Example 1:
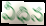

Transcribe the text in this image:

వీధిన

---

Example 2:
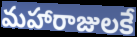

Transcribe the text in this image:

మహారాజులకే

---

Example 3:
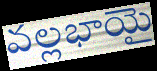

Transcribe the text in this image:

వల్లభాయై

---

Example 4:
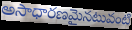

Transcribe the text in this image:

అసాధారణమైనటువంటి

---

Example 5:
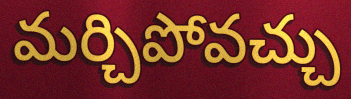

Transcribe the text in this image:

మర్చిపోవచ్చు